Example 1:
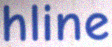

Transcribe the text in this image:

hline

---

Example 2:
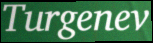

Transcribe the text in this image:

Turgenev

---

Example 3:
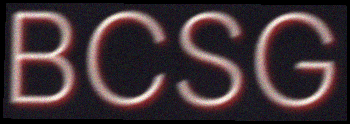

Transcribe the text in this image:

BCSG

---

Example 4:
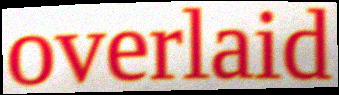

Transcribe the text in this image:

overlaid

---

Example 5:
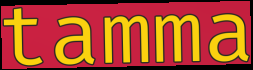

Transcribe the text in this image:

tamma